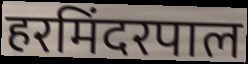
हरमिंदरपाल